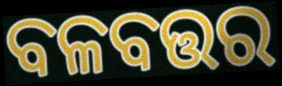
ବଳବତ୍ତର